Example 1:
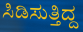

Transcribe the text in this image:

ಸಿಡಿಸುತ್ತಿದ್ದ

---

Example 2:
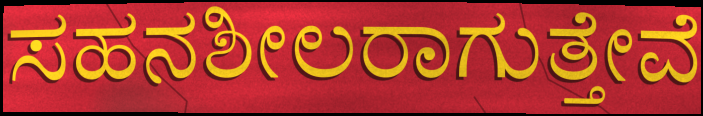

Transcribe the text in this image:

ಸಹನಶೀಲರಾಗುತ್ತೇವೆ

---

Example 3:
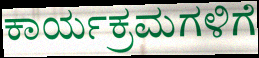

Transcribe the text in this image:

ಕಾರ್ಯಕ್ರಮಗಳಿಗೆ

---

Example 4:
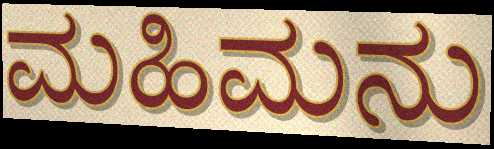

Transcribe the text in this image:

ಮಹಿಮನು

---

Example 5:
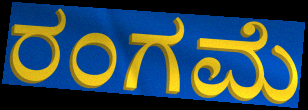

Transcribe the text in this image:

ರಂಗಮೆ